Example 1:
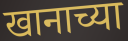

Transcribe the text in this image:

खानाच्या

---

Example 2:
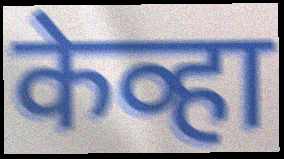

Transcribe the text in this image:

केव्हा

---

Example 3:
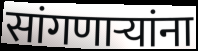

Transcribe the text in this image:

सांगणार्‍यांना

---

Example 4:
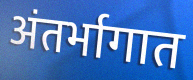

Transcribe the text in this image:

अंतर्भागात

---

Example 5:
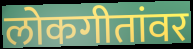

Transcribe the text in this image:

लोकगीतांवर